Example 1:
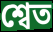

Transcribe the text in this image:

শ্বেত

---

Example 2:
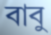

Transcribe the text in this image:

বাবু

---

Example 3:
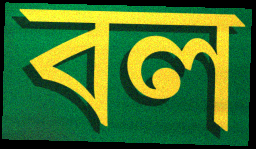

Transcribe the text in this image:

বল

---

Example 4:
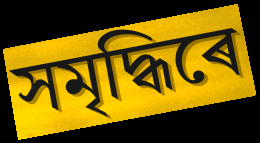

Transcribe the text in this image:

সমৃদ্ধিৰে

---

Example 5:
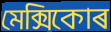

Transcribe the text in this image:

মেক্সিকোৰ